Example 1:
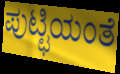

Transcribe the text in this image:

ಪುಟ್ಟಿಯಂತೆ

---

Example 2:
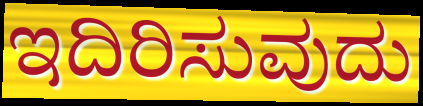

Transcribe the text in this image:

ಇದಿರಿಸುವುದು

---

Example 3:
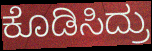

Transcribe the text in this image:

ಕೊಡಿಸಿದ್ರು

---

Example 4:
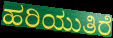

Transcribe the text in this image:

ಹರಿಯುತಿರೆ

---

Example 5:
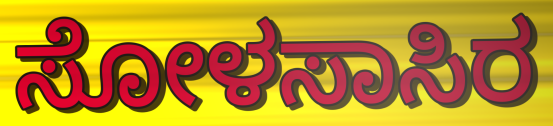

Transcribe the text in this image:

ಸೋಳಸಾಸಿರ